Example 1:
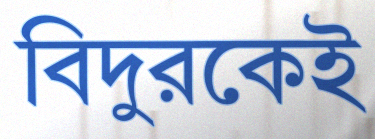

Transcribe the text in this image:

বিদুরকেই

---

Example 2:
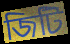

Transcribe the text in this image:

জিটি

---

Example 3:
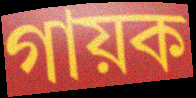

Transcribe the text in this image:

গায়ক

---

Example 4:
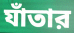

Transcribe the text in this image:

যাঁতার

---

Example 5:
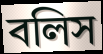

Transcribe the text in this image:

বলিস